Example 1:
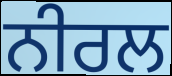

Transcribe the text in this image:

ਨੀਰਲ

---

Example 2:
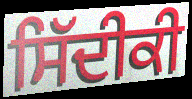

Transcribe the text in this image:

ਸਿੱਦੀਕੀ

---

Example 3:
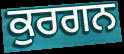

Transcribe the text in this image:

ਕੁਰਗਨ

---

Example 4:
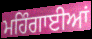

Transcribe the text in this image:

ਮਹਿੰਗਾਈਆਂ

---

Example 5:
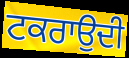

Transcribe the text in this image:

ਟਕਰਾਉਦੀ